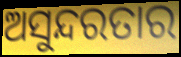
ଅସୁନ୍ଦରତାର